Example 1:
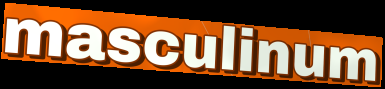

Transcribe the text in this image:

masculinum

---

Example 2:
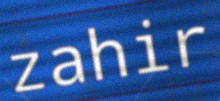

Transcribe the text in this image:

zahir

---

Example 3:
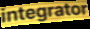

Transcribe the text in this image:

integrator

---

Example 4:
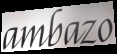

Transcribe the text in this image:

ambazo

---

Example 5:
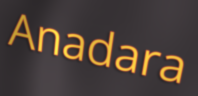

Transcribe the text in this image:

Anadara